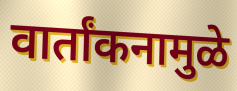
वार्तांकनामुळे